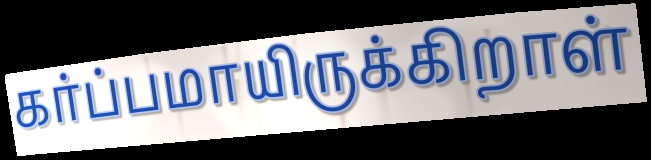
கர்ப்பமாயிருக்கிறாள்